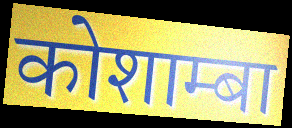
कोशाम्बा